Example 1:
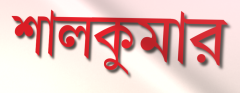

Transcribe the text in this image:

শালকুমার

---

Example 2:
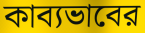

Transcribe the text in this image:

কাব্যভাবের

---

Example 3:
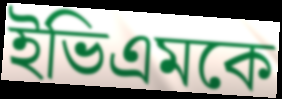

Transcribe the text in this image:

ইভিএমকে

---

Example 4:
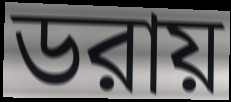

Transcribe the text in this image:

ডরায়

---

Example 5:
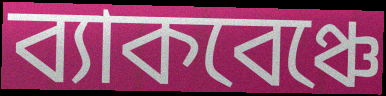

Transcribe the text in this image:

ব্যাকবেঞ্চে